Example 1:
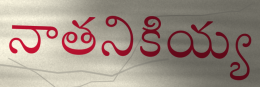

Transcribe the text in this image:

నాతనికియ్య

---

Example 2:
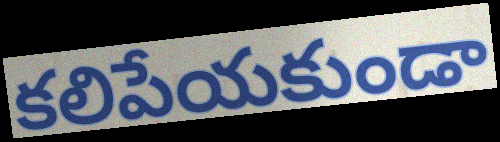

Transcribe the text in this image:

కలిపేయకుండా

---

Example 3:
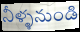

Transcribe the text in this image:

నీళ్ళనుండి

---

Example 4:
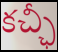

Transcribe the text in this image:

కచ్ఛీ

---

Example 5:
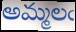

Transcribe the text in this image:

అమ్మలఁ